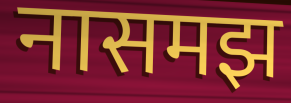
नासमझ